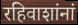
रहिवाशांनां